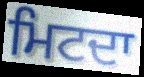
ਮਿਟਦਾ